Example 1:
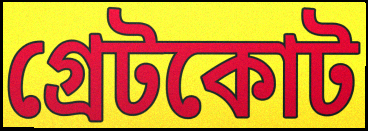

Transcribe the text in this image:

গ্রেটকোট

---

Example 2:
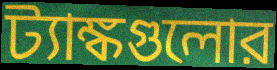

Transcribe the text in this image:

ট্যাঙ্কগুলোর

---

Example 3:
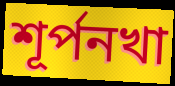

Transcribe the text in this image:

শূর্পনখা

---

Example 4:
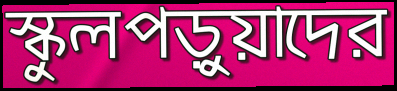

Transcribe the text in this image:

স্কুলপড়ুয়াদের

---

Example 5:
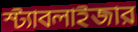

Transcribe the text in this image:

স্ট্যাবলাইজার